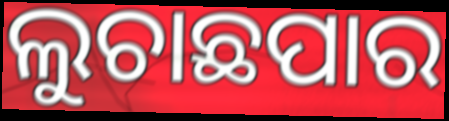
ଲୁଚାଛପାର